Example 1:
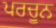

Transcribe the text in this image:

ਪਰਚੂਨ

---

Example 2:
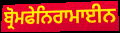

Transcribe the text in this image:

ਬ੍ਰੋਮਫੇਨਿਰਾਮਾਈਨ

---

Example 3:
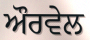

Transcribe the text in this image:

ਔਰਵੇਲ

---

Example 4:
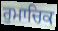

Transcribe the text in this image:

ਰੁਮਾਚਿਕ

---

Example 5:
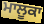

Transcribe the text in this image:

ਮਾਲੂਕਾ